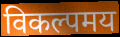
विकल्पमय